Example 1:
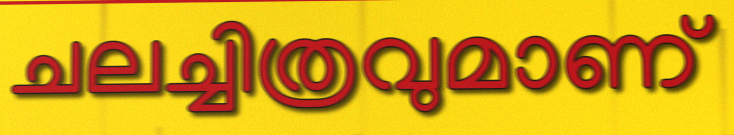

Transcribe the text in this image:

ചലച്ചിത്രവുമാണ്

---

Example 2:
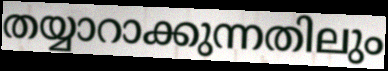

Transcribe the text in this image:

തയ്യാറാക്കുന്നതിലും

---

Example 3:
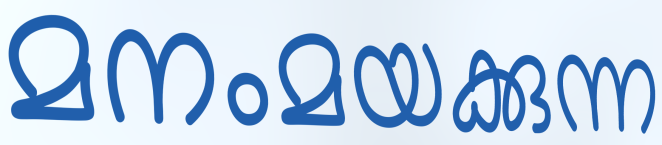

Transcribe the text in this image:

മനംമയക്കുന്ന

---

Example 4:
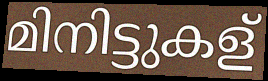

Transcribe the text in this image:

മിനിട്ടുകള്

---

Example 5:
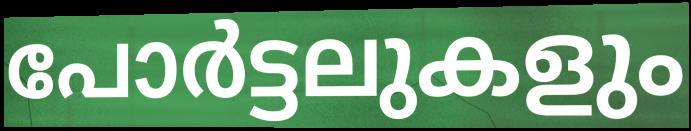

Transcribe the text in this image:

പോർട്ടലുകളും